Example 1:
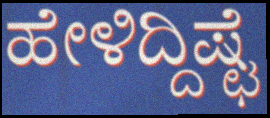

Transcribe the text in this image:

ಹೇಳಿದ್ದಿಷ್ಟೆ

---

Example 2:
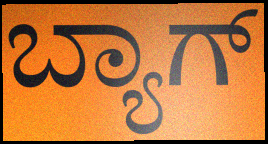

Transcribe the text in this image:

ಬ್ಯಾಗ್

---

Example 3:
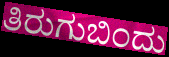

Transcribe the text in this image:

ತಿರುಗುಬಿಂದು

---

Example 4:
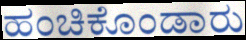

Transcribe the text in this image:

ಹಂಚಿಕೊಂಡಾರು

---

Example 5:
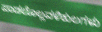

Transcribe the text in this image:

ಪಾಡಲೊಲ್ಲವಳಿಕುಲಗಳು